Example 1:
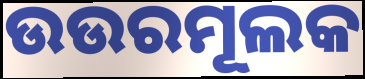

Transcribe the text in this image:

ଉଉରମୂଲକ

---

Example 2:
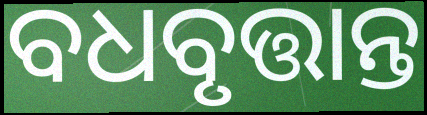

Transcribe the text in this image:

ବଧବୃତ୍ତାନ୍ତ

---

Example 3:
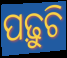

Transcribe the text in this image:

ପଢ଼ୁଚି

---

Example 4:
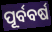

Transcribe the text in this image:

ପୂର୍ବବର୍ଷ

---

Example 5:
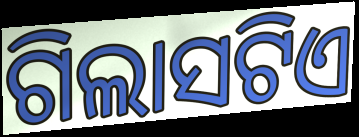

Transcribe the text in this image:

ଗିଲାସଟିଏ